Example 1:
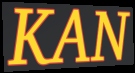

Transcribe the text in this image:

KAN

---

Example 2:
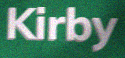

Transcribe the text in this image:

Kirby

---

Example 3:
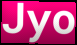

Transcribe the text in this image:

Jyo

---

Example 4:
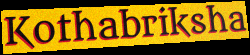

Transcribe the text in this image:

Kothabriksha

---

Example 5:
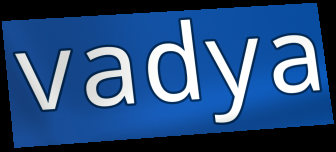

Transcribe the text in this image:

vadya